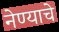
नेण्याचे